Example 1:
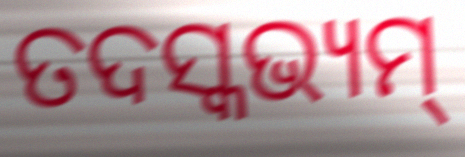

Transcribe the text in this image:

ତଦସ୍କଭ୍ୟମ୍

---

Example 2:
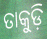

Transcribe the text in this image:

ତାକୁଡ଼ି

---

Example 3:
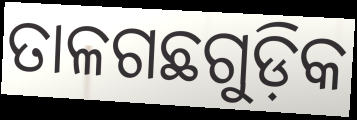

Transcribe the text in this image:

ତାଳଗଛଗୁଡ଼ିକ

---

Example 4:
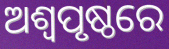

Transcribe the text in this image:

ଅଶ୍ୱପୃଷ୍ଠରେ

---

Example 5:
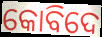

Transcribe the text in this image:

କୋବିଦେ